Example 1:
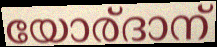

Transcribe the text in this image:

യോര്ദാന്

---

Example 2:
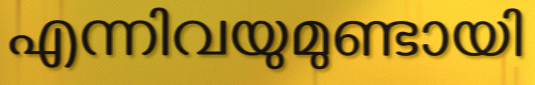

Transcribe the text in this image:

എന്നിവയുമുണ്ടായി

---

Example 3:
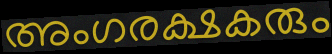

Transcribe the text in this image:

അംഗരക്ഷകരും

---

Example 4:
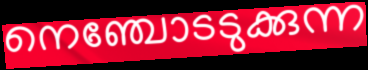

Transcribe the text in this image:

നെഞ്ചോടടുക്കുന്ന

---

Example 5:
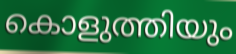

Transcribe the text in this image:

കൊളുത്തിയും